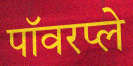
पॉवरप्ले